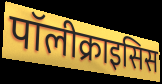
पॉलीक्राइसिस